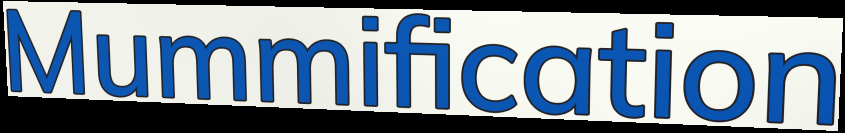
Mummification